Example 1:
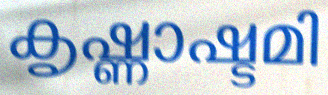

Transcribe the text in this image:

കൃഷ്ണാഷ്ടമി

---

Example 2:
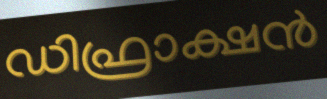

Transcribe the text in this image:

ഡിഫ്രാക്ഷൻ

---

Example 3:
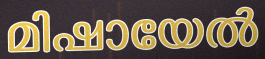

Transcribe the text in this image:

മിഷായേൽ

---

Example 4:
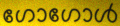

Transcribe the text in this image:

ഗോഗോൾ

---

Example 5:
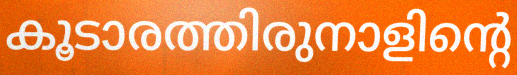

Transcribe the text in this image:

കൂടാരത്തിരുനാളിന്റെ